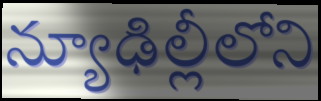
న్యూఢిల్లీలోని